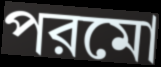
পরমো